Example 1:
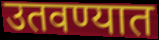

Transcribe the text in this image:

उतवण्यात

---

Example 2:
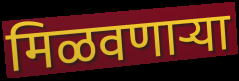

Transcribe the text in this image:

मिळवणाऱ्या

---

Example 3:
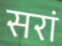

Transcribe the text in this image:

सरां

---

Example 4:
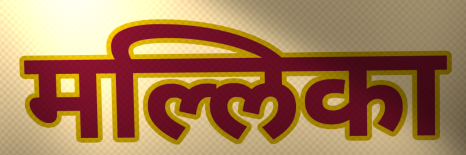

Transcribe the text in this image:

मल्लिका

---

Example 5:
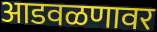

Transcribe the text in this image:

आडवळणावर